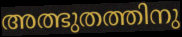
അത്ഭുതത്തിനു